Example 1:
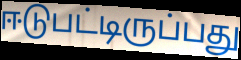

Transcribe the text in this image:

ஈடுபட்டிருப்பது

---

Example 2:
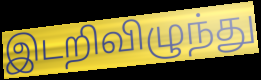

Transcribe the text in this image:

இடறிவிழுந்து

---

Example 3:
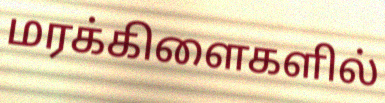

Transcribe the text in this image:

மரக்கிளைகளில்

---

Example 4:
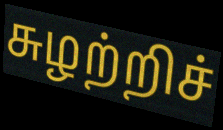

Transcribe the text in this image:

சுழற்றிச்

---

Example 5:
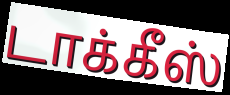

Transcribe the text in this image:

டாக்கீஸ்